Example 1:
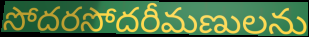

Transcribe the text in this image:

సోదరసోదరీమణులను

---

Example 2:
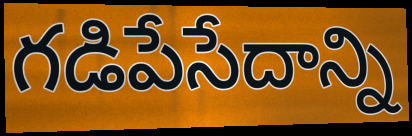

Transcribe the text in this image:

గడిపేసేదాన్ని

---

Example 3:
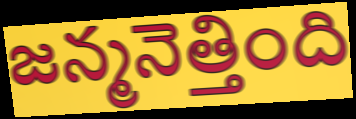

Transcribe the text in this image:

జన్మనెత్తింది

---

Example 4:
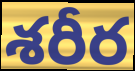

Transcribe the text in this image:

శరీర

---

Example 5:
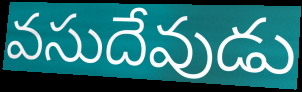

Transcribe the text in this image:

వసుదేవుడు